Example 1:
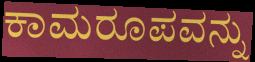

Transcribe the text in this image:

ಕಾಮರೂಪವನ್ನು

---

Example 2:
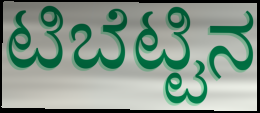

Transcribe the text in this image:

ಟಿಬೆಟ್ಟಿನ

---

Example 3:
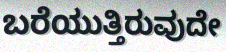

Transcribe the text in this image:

ಬರೆಯುತ್ತಿರುವುದೇ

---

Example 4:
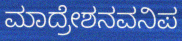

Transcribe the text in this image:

ಮಾದ್ರೇಶನವನಿಪ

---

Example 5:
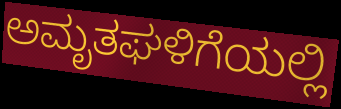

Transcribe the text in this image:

ಅಮೃತಘಳಿಗೆಯಲ್ಲಿ